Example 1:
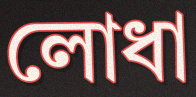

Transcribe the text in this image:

লোধা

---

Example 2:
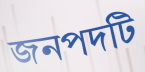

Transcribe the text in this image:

জনপদটি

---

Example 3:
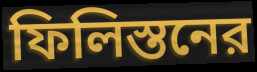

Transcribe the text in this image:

ফিলিস্তনের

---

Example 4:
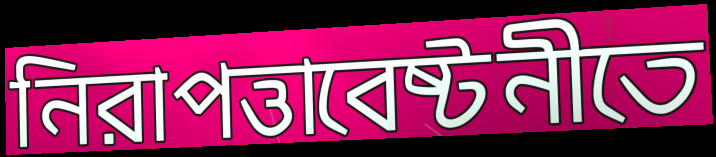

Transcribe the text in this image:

নিরাপত্তাবেষ্টনীতে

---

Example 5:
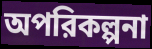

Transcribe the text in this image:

অপরিকল্পনা